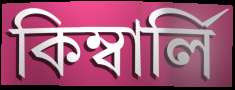
কিম্বার্লি